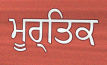
ਮੂਰ੍ਤਿਕ